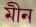
মীন